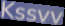
Kssvv